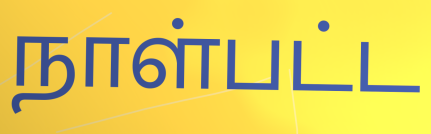
நாள்பட்ட